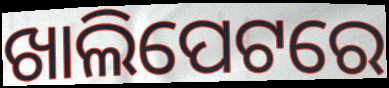
ଖାଲିପେଟରେ